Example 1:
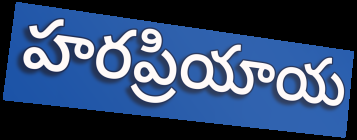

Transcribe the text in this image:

హరప్రియాయ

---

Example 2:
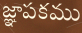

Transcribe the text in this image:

జ్ఞాపకము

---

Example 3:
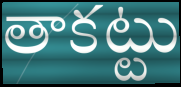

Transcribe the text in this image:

తాకట్టు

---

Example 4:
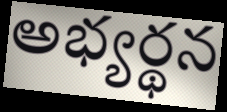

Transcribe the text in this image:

అభ్యర్థన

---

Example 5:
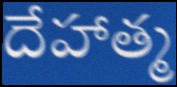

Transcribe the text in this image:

దేహాత్మ